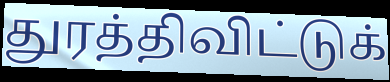
துரத்திவிட்டுக்